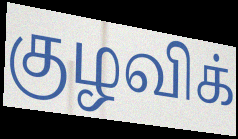
குழவிக்